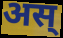
अस्